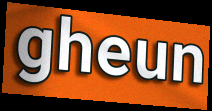
gheun